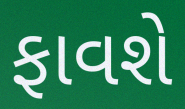
ફાવશે